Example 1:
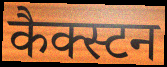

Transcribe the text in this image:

कैक्स्टन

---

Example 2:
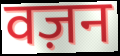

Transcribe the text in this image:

वज़न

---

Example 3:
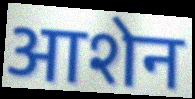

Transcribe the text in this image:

आशेन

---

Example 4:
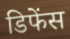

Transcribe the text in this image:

डिफेंस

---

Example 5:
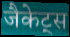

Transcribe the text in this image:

जैकेट्स